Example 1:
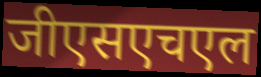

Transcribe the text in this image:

जीएसएचएल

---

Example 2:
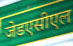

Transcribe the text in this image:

जेडएसीएल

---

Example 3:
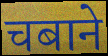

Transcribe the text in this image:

चबाने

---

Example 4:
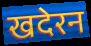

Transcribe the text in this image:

खदेरन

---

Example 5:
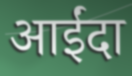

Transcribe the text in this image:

आईंदा